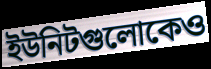
ইউনিটগুলোকেও